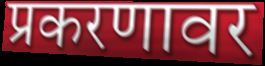
प्रकरणावर